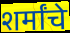
शर्मांचे